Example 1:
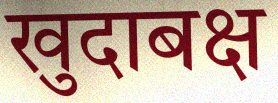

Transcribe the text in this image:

खुदाबक्ष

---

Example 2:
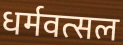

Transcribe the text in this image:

धर्मवत्सल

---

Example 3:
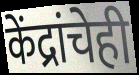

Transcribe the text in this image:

केंद्रांचेही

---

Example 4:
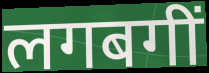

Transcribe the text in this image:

लगबगीं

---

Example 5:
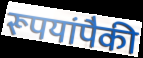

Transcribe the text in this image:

रूपयांपैकी